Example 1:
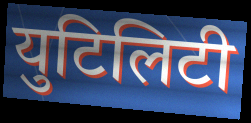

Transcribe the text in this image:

युटिलिटी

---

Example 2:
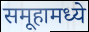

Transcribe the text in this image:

समूहामध्ये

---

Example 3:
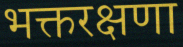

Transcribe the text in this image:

भक्तरक्षणा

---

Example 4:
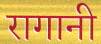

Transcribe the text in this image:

रागानी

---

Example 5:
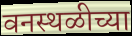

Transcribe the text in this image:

वनस्थळीच्या